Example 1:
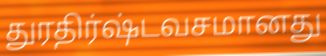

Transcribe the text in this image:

துரதிர்ஷ்டவசமானது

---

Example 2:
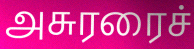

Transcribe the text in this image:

அசுரரைச்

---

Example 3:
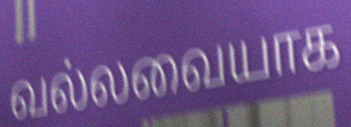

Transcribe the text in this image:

வல்லவையாக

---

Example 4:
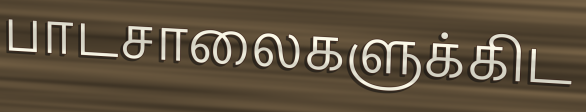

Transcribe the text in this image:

பாடசாலைகளுக்கிட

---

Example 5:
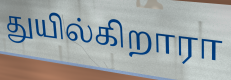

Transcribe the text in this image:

துயில்கிறாரா